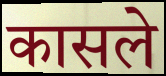
कासले